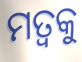
ମତ୍ୱକୁ